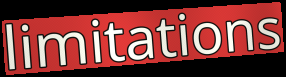
limitations